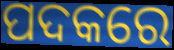
ପଦକରେ